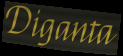
Diganta